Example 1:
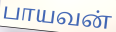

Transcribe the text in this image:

பாயவன்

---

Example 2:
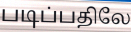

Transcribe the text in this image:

படிப்பதிலே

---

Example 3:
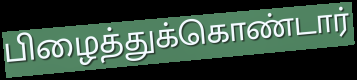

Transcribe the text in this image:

பிழைத்துக்கொண்டார்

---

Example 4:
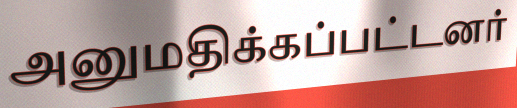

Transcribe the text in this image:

அனுமதிக்கப்பட்டனர்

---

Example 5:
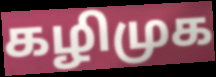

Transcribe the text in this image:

கழிமுக